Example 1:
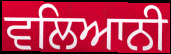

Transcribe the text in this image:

ਵਲਿਆਨੀ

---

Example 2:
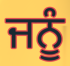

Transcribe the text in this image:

ਜਨੂੰ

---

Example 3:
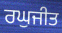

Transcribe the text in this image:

ਰਘੁਜੀਤ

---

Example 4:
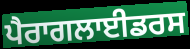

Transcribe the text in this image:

ਪੈਰਾਗਲਾਈਡਰਸ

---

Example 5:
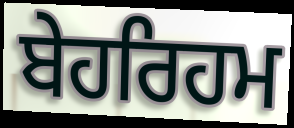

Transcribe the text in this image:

ਬੇਹਰਿਹਮ